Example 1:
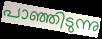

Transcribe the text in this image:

പാഞ്ഞിടുന്നു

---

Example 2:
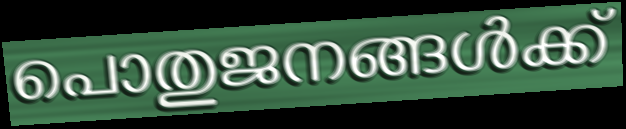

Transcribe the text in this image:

പൊതുജനങ്ങൾക്ക്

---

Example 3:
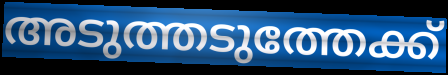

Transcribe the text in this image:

അടുത്തടുത്തേക്ക്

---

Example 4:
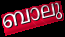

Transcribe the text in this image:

ബാലു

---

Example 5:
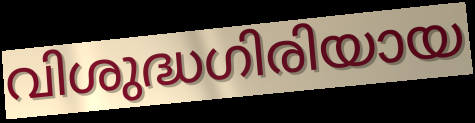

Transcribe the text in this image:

വിശുദ്ധഗിരിയായ